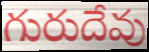
గురుదేవు